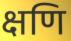
क्षणि